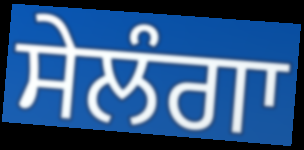
ਸੇਲੰਗਾ